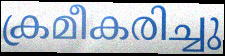
ക്രമീകരിച്ചു